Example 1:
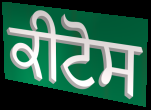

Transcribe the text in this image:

ਕੀਟੋਸ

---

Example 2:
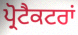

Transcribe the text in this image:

ਪ੍ਰੋਟੈਕਟਰਾਂ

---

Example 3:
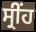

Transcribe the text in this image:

ਸ੍ਰੀਂਹ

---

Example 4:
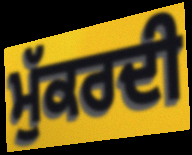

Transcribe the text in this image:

ਮੁੱਕਰਦੀ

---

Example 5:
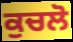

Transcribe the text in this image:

ਕੁਚਲੋ